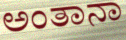
ಅಂತಾನಾ